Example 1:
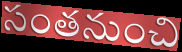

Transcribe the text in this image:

సంతనుంచి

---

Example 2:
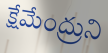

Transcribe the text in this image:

క్షేమేంద్రుని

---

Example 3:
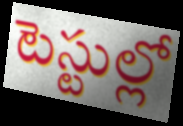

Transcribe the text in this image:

టెస్టుల్లో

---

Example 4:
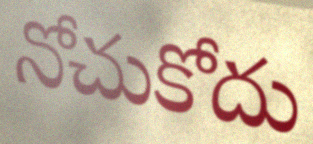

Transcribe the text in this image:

నోచుకోదు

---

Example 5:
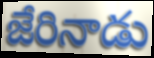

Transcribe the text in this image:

జేరినాడు